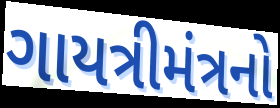
ગાયત્રીમંત્રનો